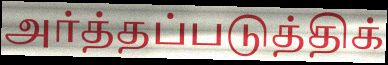
அர்த்தப்படுத்திக்